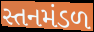
સ્તનમંડળ